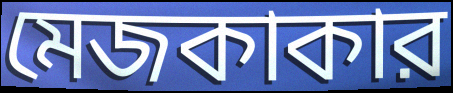
মেজকাকার